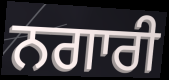
ਨਗਾਰੀ